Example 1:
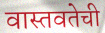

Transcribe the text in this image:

वास्तवतेची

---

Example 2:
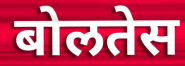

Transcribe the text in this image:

बोलतेस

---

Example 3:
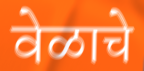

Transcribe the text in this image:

वेळाचे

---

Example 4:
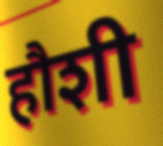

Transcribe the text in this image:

हौशी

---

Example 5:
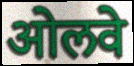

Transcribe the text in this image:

ओलवे